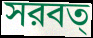
সরবত্